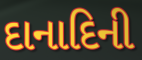
દાનાદિની